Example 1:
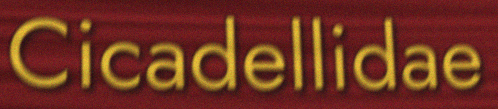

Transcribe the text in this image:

Cicadellidae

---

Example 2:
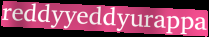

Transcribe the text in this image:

reddyyeddyurappa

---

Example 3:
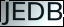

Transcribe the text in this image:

JEDB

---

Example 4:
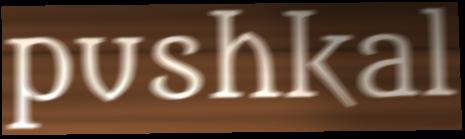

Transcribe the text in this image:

pushkal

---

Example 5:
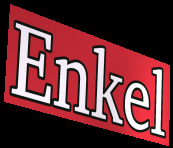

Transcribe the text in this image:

Enkel